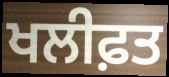
ਖਲੀਫ਼ਤ